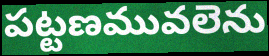
పట్టణమువలెను